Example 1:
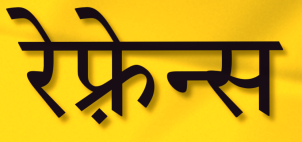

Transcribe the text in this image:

रेफ़्रेन्स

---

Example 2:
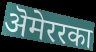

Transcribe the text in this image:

ऄमेररका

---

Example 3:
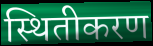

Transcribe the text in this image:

स्थितीकरण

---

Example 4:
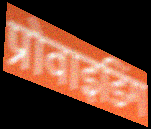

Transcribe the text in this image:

प्रोवाइडिंग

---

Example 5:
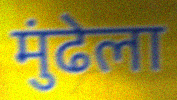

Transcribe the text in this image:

मुंढेला